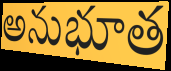
అనుభూత